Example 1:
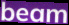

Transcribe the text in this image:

beam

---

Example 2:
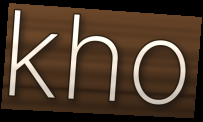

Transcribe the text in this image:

kho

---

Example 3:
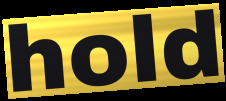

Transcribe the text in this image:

hold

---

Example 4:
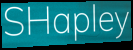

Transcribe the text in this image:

SHapley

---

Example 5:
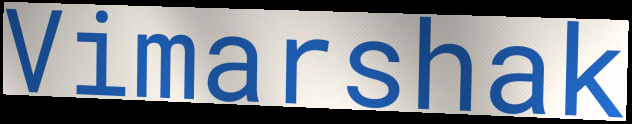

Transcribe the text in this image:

Vimarshak